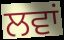
ਲਵਾਂ